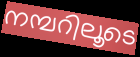
നമ്പറിലൂടെ